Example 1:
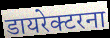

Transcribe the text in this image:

डायरेक्टरना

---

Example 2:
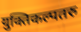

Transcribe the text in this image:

युक्तिकल्पतरु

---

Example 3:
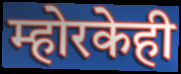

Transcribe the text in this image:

म्होरकेही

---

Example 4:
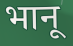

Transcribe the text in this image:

भानू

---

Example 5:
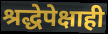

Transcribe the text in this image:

श्रद्धेपेक्षाही